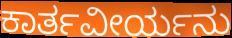
ಕಾರ್ತವೀರ್ಯನು